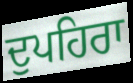
ਦੁਪਹਿਰਾ